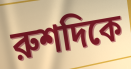
রুশদিকে